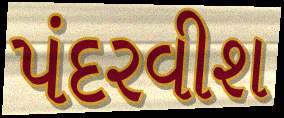
પંદરવીશ